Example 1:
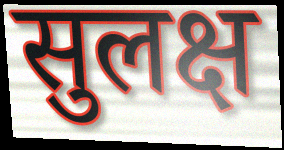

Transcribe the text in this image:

सुलक्ष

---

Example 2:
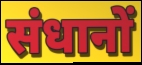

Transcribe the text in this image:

संधानों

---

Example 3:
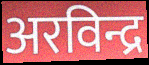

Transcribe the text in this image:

अरविन्द्र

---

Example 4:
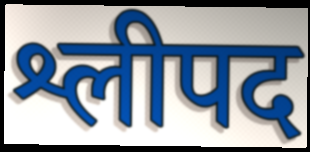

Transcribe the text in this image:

श्लीपद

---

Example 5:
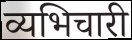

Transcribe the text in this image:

व्यभिचारी